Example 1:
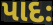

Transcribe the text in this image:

પાદઃ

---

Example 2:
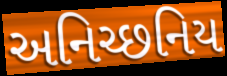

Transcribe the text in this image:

અનિચ્છનિય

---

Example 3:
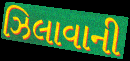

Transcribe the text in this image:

ઝિલાવાની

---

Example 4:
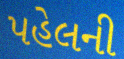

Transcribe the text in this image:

પહેલની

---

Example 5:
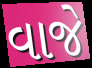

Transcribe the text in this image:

વાજે